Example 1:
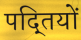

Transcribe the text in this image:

पद्तियों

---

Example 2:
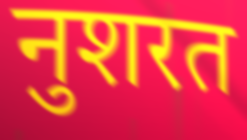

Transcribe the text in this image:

नुशरत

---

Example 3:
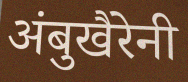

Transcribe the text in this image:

अंबुखैरेनी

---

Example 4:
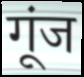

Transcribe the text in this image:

गूंज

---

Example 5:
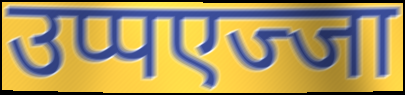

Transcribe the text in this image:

उप्पएज्जा